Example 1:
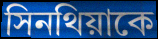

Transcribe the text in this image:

সিনথিয়াকে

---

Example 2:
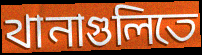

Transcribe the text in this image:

থানাগুলিতে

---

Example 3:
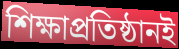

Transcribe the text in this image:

শিক্ষাপ্রতিষ্ঠানই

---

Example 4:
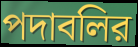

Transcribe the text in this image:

পদাবলির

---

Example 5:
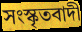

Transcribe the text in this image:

সংস্কৃতবাদী